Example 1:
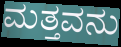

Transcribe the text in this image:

ಮತ್ತವನು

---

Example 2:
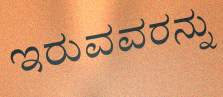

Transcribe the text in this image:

ಇರುವವರನ್ನು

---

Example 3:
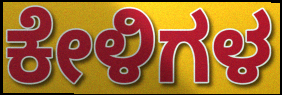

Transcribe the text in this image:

ಕೇಳಿಗಳ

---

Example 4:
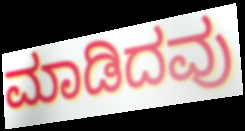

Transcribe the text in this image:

ಮಾಡಿದವು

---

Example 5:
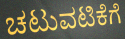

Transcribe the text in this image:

ಚಟುವಟಿಕೆಗೆ